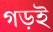
গড়ই